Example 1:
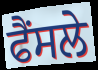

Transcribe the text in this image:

ਫੈਂਸਲੇ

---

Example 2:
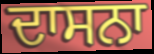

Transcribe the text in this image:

ਦਾਸਨਾ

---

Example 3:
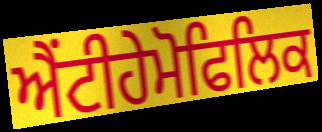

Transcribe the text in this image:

ਐਂਟੀਹੇਮੋਫਿਲਿਕ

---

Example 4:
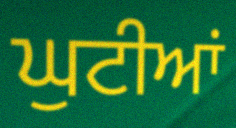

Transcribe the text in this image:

ਘੁਟੀਆਂ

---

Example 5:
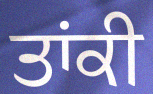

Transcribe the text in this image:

ਤਾਂਕੀ